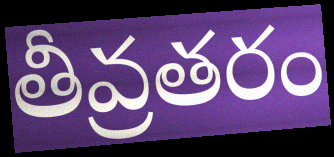
తీవ్రతరం